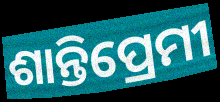
ଶାନ୍ତିପ୍ରେମୀ